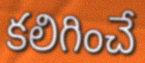
కలిగించే